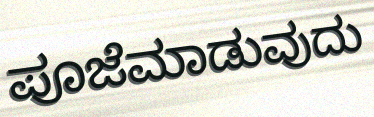
ಪೂಜೆಮಾಡುವುದು